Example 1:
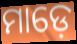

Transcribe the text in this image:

ମାଡ଼େ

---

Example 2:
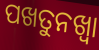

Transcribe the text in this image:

ପଖତୁନଖ୍ୱା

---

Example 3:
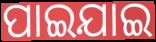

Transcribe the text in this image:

ପାଇଯାଇ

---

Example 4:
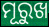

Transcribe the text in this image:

ମୂରୁଖ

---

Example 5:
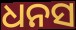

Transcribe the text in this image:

ଧନସ